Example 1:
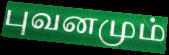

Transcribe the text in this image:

புவனமும்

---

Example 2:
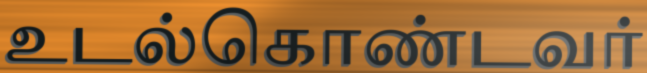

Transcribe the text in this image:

உடல்கொண்டவர்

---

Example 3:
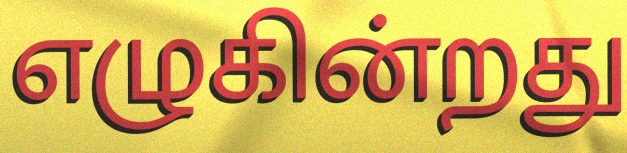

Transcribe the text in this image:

எழுகின்றது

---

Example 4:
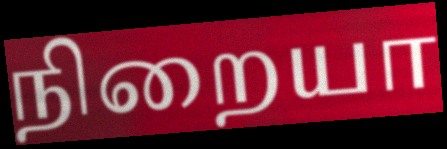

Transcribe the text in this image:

நிறையா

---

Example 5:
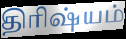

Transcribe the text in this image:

திரிஷ்யம்